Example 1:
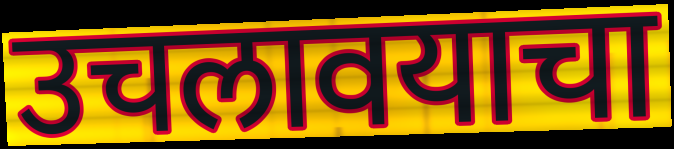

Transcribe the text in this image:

उचलावयाचा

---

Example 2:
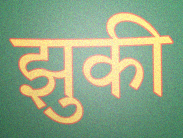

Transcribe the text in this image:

झुकी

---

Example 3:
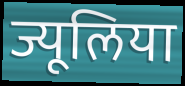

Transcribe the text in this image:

ज्यूलिया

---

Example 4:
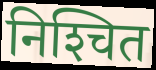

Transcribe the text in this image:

निश्‍चित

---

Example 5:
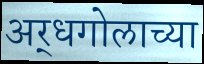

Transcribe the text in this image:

अर्धगोलाच्या